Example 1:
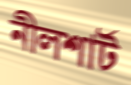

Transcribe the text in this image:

নীলশার্ট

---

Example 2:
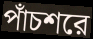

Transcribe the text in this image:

পাঁচশরে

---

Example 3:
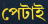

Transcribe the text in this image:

পেটাই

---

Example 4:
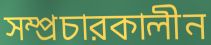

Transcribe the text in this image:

সম্প্রচারকালীন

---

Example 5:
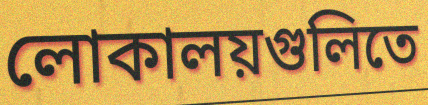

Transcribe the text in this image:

লোকালয়গুলিতে